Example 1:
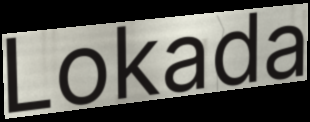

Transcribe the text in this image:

Lokada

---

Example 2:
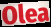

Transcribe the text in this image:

Olea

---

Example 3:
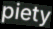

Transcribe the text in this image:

piety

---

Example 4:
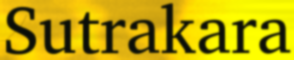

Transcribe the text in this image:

Sutrakara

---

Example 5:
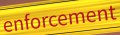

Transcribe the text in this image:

enforcement